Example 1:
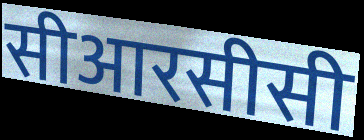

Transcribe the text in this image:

सीआरसीसी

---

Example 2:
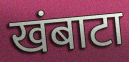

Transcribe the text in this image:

खंबाटा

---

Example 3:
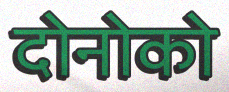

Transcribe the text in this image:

दोनोको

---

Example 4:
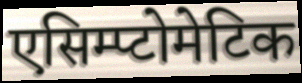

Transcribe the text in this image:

एसिम्प्टोमेटिक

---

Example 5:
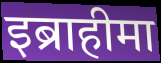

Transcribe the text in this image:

इब्राहीमा